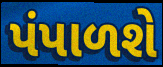
પંપાળશે